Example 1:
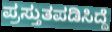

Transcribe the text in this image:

ಪ್ರಸ್ತುತಪಡಿಸಿದ್ದೆ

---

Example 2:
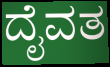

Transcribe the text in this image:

ದೈವತ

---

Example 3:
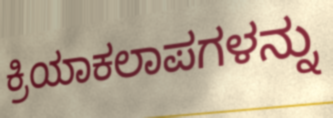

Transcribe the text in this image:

ಕ್ರಿಯಾಕಲಾಪಗಳನ್ನು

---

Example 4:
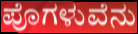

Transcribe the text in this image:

ಪೊಗಳುವೆನು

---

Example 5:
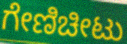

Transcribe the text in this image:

ಗೇಣಿಚೀಟು